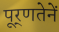
पूर्णतेनें